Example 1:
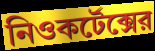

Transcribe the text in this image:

নিওকর্টেক্সের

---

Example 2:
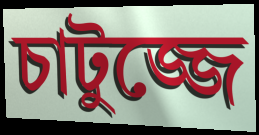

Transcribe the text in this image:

চাটুজ্জে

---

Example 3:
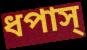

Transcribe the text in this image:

ধপাস্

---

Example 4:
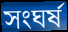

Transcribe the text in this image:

সংঘর্ষ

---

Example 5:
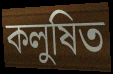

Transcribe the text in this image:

কলুষিত